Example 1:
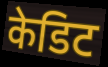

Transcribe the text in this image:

केडिट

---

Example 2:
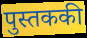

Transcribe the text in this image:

पुस्तककी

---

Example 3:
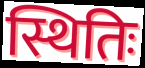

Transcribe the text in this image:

स्थितिः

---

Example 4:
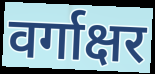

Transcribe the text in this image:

वर्गाक्षर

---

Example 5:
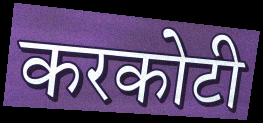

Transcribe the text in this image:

करकोटी